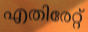
എതിരേറ്റ്